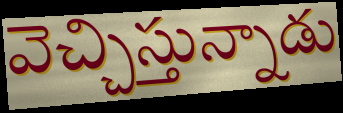
వెచ్చిస్తున్నాడు